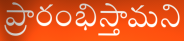
ప్రారంభిస్తామని